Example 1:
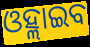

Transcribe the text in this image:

ଓହ୍ଲାଇବ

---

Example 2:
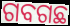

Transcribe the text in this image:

ଗବଗଛ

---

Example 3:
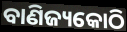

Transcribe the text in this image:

ବାଣିଜ୍ୟକୋଠି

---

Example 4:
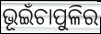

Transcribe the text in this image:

ଭୂଇଁଚାପୁଳିର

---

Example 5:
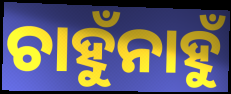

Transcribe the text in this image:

ଚାହୁଁନାହୁଁ